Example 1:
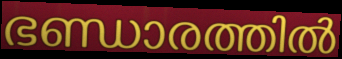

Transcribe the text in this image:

ഭണ്ഡാരത്തിൽ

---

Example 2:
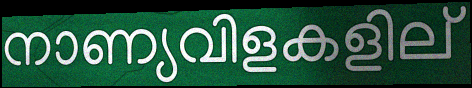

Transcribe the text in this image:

നാണ്യവിളകളില്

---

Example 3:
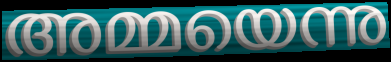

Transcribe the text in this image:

അമ്മയെന്നു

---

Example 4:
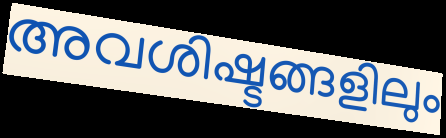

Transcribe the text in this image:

അവശിഷ്ടങ്ങളിലും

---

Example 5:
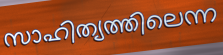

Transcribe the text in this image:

സാഹിത്യത്തിലെന്ന